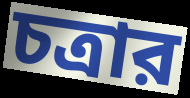
চত্রার